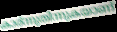
കാര്ന്നുതിന്നുകയാണ്